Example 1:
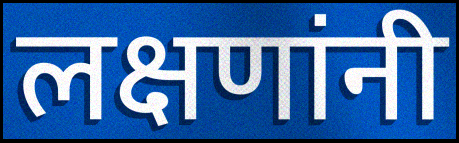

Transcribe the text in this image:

लक्षणांनी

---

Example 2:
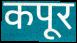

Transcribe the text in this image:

कपूर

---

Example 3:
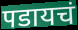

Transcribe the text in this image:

पडायचं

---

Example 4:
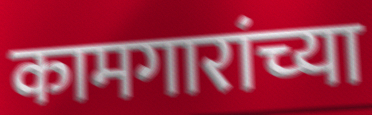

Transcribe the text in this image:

कामगारांच्या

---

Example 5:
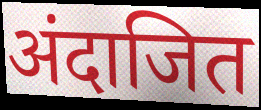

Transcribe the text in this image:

अंदाजित